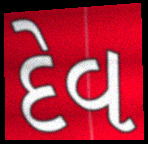
દેવ